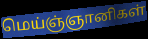
மெய்ஞ்ஞானிகள்